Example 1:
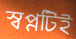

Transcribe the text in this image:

স্বপ্নটিই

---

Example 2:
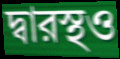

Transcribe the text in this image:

দ্বারস্থও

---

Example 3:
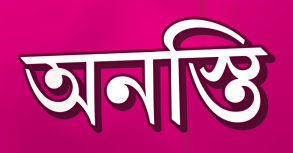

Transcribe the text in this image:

অনস্তি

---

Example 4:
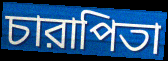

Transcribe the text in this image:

চারাপিতা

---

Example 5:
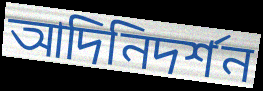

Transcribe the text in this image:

আদিনিদর্শন